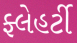
ફ્લેહર્ટી